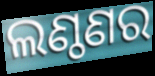
ଲଣ୍ଠଣର